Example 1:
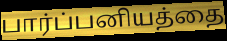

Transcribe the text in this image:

பார்ப்பனியத்தை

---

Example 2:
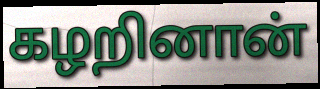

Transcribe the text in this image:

கழறினான்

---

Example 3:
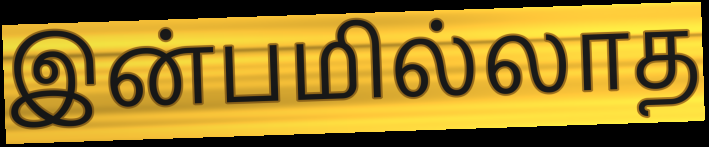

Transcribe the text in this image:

இன்பமில்லாத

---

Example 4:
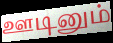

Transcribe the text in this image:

ஊடினும்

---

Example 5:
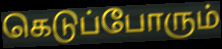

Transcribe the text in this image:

கெடுப்போரும்